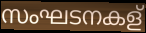
സംഘടനകള്